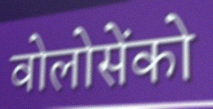
वोलोसेंको